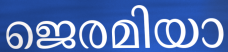
ജെരമിയാ